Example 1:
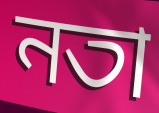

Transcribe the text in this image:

নতা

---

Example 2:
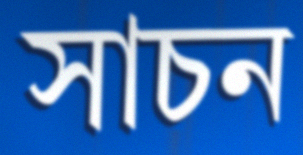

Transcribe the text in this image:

সাচন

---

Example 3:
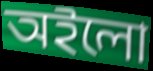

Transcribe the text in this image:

অইলো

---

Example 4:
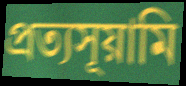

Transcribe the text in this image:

প্রত্যসূয়ামি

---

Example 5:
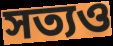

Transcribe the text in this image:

সত্যও